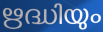
ഋദ്ധിയും